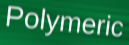
Polymeric